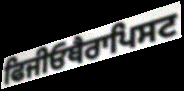
ਫਿਜੀਓਥੈਰਾਪਿਸਟ